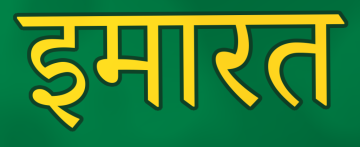
इमारत